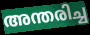
അന്തരിച്ച